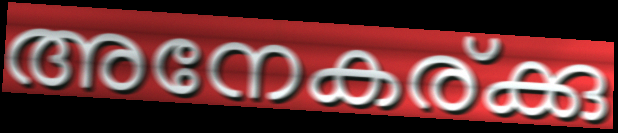
അനേകര്ക്കു